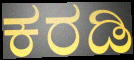
ಕರಡಿ